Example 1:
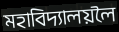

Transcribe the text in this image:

মহাবিদ্যালয়লৈ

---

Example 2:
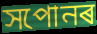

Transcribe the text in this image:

সপোনৰ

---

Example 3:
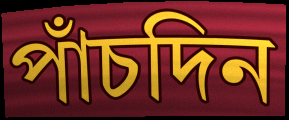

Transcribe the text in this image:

পাঁচদিন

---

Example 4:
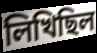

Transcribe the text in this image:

লিখিছিল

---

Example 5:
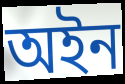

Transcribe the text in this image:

অইন